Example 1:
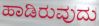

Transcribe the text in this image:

ಹಾಡಿರುವುದು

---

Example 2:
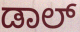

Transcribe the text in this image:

ಡಾಲ್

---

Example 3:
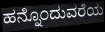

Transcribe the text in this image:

ಹನ್ನೊಂದುವರೆಯ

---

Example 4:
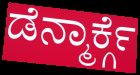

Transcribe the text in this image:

ಡೆನ್ಮಾರ್ಕ್ಗೆ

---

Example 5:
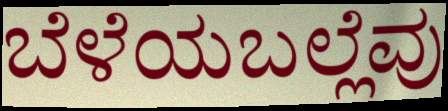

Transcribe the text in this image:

ಬೆಳೆಯಬಲ್ಲೆವು